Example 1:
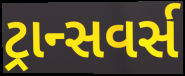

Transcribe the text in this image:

ટ્રાન્સવર્સ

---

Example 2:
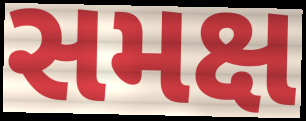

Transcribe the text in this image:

સમક્ષ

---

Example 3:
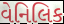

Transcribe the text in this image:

વેનિલિક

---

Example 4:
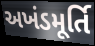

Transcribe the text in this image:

અખંડમૂર્તિ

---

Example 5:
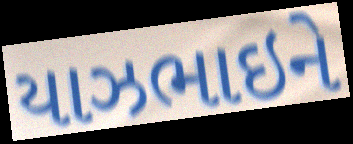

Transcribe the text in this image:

યાઝભાઇને